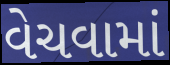
વેચવામાં